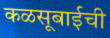
कळसूबाईची